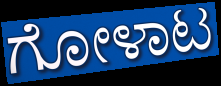
ಗೋಳಾಟ